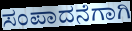
ಸಂಪಾದನೆಗಾಗಿ